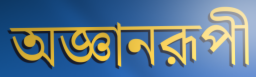
অজ্ঞানরূপী